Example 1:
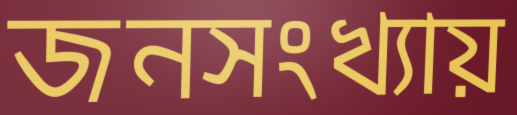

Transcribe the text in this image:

জনসংখ্যায়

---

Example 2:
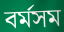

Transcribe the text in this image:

বর্মসম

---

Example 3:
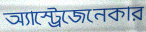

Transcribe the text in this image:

অ্যাস্ট্রেজেনেকার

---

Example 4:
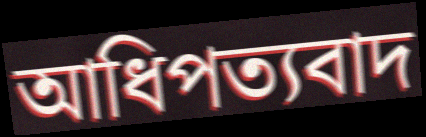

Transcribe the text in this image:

আধিপত্যবাদ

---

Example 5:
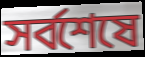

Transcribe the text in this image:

সর্বশেষে